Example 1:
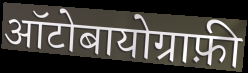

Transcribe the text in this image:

ऑटोबायोग्राफ़ी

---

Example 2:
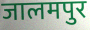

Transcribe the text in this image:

जालमपुर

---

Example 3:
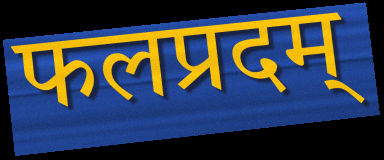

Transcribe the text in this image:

फलप्रदम्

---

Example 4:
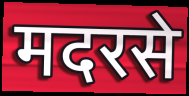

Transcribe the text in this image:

मदरसे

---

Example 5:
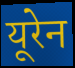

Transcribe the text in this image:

यूरेन